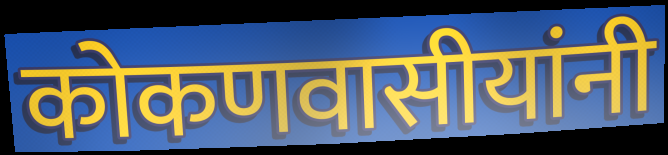
कोकणवासीयांनी